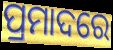
ପ୍ରମାଦରେ